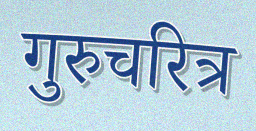
गुरुचरित्र